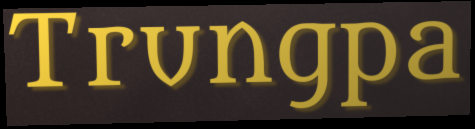
Trungpa